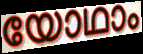
യോഥാം